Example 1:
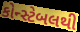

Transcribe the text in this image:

કોન્સ્ટેબલથી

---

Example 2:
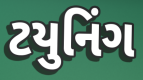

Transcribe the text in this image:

ટયુનિંગ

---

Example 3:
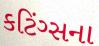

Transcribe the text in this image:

કટિંગ્સના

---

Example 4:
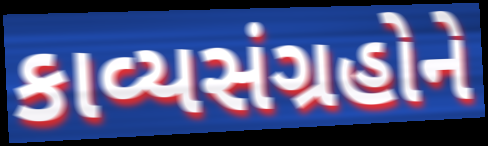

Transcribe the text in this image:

કાવ્યસંગ્રહોને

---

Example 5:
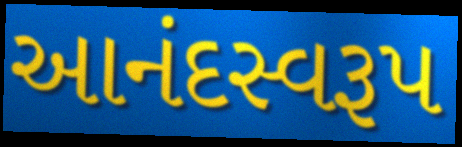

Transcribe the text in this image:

આનંદસ્વરૂપ